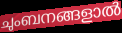
ചുംബനങ്ങളാൽ